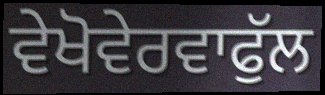
ਵੇਖੋਵੇਰਵਾਫੁੱਲ